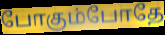
போகும்போதே